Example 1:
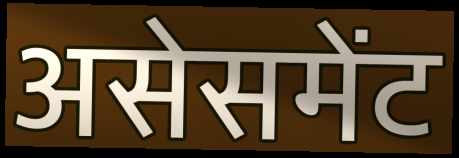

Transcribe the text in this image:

असेसमेंट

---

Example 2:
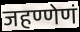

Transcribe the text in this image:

जहण्णेणं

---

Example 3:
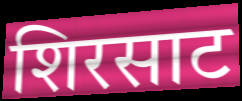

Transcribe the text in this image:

शिरसाट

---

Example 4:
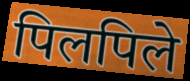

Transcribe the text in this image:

पिलपिले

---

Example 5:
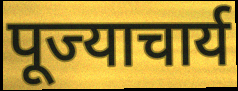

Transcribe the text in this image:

पूज्याचार्य